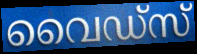
വൈഡ്സ്